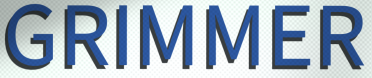
GRIMMER